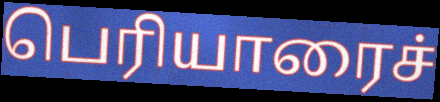
பெரியாரைச்